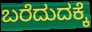
ಬರೆದುದಕ್ಕೆ